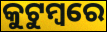
କୁଟୁମ୍ଵରେ